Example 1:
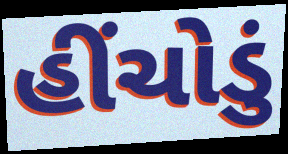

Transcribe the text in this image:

હીંચોડું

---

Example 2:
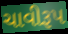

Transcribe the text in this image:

ચાવીરૂપ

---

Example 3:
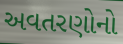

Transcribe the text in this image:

અવતરણોનો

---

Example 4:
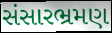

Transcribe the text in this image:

સંસારભ્રમણ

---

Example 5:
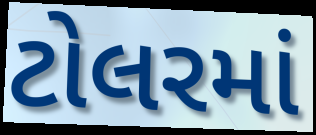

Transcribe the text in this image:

ટોલરમાં